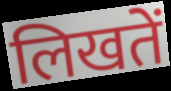
लिखतें